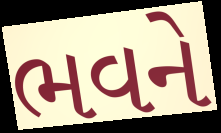
ભવને